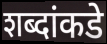
शब्दांकडे